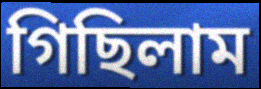
গিছিলাম